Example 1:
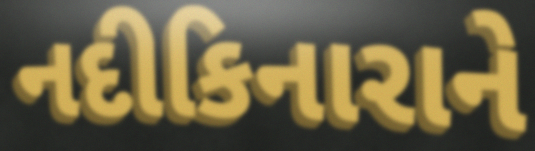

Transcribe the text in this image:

નદીકિનારાને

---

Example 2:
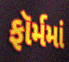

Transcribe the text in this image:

ફૉર્મમાં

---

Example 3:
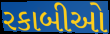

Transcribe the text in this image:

રકાબીઓ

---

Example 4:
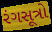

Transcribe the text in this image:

રંગસૂત્રો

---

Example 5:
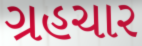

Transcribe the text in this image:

ગ્રહચાર